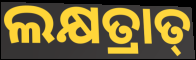
ଲକ୍ଷତ୍ରାତ୍